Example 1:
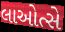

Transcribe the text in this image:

લાઓત્સે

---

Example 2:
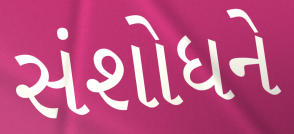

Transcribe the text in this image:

સંશોધને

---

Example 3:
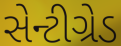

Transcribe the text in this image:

સેન્ટીગ્રેડ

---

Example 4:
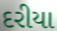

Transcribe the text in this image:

દરીયા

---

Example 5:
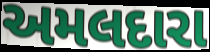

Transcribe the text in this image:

અમલદારા